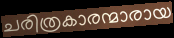
ചരിത്രകാരന്മാരായ